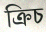
ক্রিচ